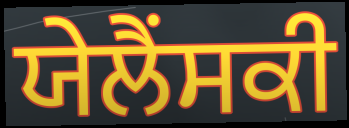
ਯੇਲੈਂਸਕੀ